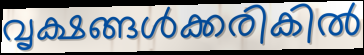
വൃക്ഷങ്ങൾക്കരികിൽ